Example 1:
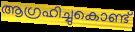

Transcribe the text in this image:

ആഗ്രഹിച്ചുകൊണ്ട്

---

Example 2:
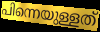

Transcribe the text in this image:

പിന്നെയുള്ളത്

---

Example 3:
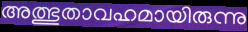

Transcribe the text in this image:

അത്ഭുതാവഹമായിരുന്നു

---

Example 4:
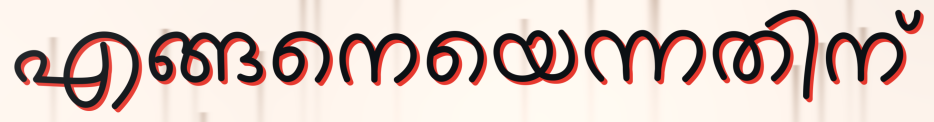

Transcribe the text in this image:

എങ്ങനെയെന്നതിന്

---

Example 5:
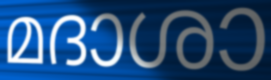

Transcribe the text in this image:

മദാശാ